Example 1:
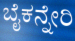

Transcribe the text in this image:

ಬೈಕನ್ನೇರಿ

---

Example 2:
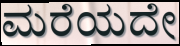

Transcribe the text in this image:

ಮರೆಯದೇ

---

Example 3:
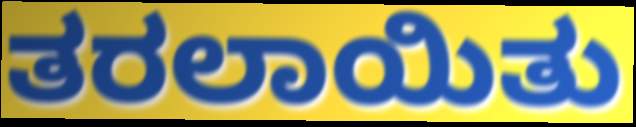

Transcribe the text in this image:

ತರಲಾಯಿತು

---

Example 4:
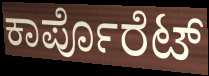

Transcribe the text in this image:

ಕಾರ್ಪೊರೆಟ್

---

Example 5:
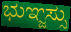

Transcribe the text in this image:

ಭುಞ್ಜಸ್ಸು